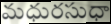
మధురసుధా